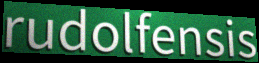
rudolfensis